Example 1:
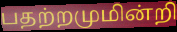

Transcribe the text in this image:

பதற்றமுமின்றி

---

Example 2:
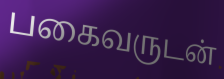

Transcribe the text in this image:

பகைவருடன்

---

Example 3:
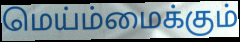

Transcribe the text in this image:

மெய்ம்மைக்கும்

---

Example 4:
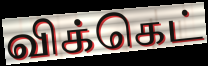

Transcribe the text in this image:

விக்கெட்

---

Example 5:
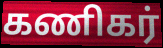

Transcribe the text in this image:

கணிகர்